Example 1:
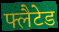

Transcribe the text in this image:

फ्लैटेड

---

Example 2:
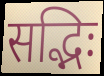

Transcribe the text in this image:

सद्भिः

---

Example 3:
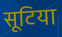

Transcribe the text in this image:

सूटिया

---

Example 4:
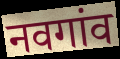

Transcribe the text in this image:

नवगांव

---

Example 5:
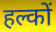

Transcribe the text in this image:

हल्कों